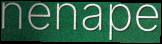
nenape